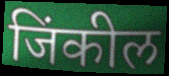
जिंकील